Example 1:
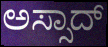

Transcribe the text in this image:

ಅಸ್ಸಾದ್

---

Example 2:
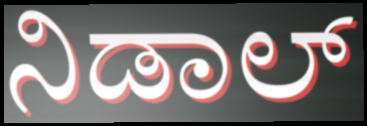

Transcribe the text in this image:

ನಿಡಾಲ್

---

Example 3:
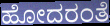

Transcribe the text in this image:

ಹೋದರಂತೆ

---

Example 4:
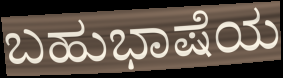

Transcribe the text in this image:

ಬಹುಭಾಷೆಯ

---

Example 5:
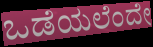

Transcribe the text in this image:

ಒಡೆಯಲೆಂದೇ